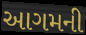
આગમની